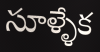
సూళ్ళేక